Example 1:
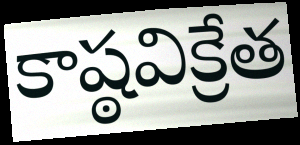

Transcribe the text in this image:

కాష్ఠవిక్రేత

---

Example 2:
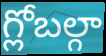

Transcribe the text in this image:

గ్లోబల్గా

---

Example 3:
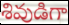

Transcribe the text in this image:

శివుడిగా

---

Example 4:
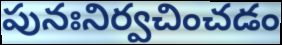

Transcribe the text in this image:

పునఃనిర్వచించడం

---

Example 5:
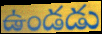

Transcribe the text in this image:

ఉండడు